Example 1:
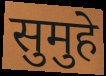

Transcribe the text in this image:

सुमुहे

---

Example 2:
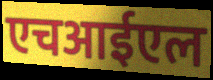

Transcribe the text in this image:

एचआईएल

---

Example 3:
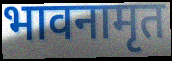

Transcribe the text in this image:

भावनामृत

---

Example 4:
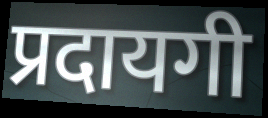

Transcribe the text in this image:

प्रदायगी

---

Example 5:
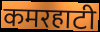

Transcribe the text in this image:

कमरहाटी